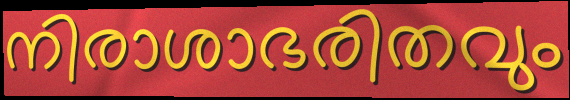
നിരാശാഭരിതവും